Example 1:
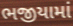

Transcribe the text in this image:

ભજીયામાં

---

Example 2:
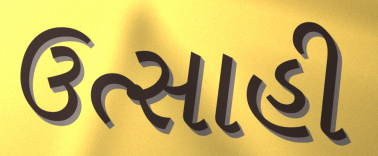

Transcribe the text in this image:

ઉત્સાહી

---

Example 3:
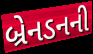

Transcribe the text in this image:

બ્રેનડનની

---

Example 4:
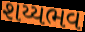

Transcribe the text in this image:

શય્યભવ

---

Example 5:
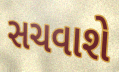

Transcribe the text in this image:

સચવાશે